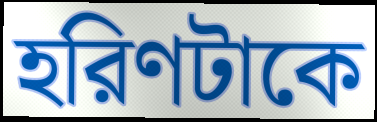
হরিণটাকে